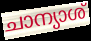
ചാന്യാശ്